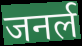
जनर्ल